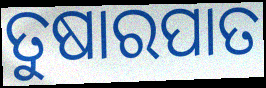
ତୁଷାରପାତ